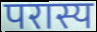
परास्य